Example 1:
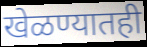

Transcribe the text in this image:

खेळण्यातही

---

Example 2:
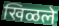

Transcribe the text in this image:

खिळले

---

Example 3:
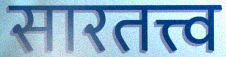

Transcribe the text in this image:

सारतत्त्व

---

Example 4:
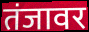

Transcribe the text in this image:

तंजावर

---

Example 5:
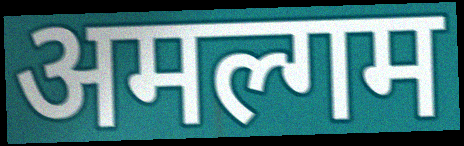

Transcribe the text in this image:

अमल्गम